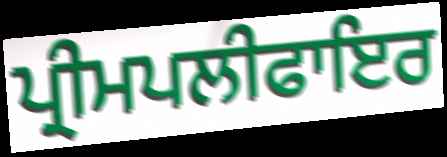
ਪ੍ਰੀਮਪਲੀਫਾਇਰ